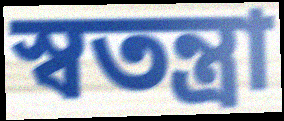
স্বতন্ত্রা